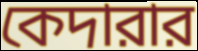
কেদারার